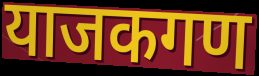
याजकगण